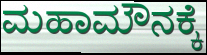
ಮಹಾಮೌನಕ್ಕೆ